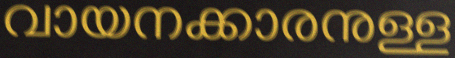
വായനക്കാരനുള്ള